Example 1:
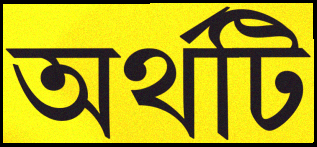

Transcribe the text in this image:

অর্থটি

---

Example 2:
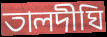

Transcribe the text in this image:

তালদীঘি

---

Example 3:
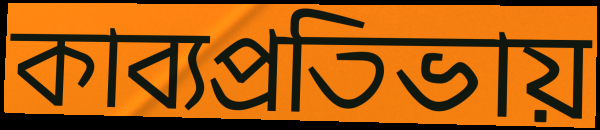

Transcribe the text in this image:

কাব্যপ্রতিভায়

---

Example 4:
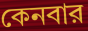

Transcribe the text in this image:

কেনবার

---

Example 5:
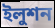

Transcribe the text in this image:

ইলুশন